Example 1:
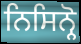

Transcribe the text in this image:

ਨਿਸਿਨ੍ਨੋ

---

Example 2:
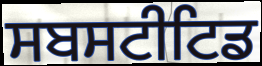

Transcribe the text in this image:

ਸਬਸਟੀਟਿਡ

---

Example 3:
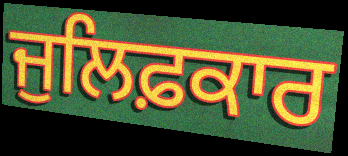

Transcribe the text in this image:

ਜੁਲਿਫ਼ਕਾਰ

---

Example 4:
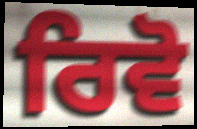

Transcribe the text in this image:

ਰਿਵੋ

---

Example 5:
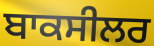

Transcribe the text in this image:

ਬਾਕਸੀਲਰ